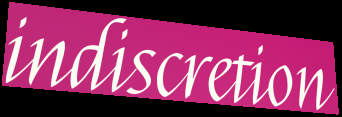
indiscretion